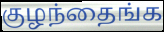
குழந்தைங்க